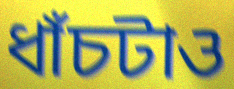
ধাঁচটাও